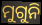
ମୁଗୁନି